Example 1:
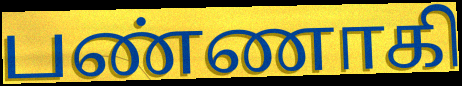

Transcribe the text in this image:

பண்ணாகி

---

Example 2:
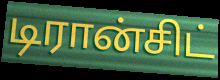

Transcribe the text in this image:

டிரான்சிட்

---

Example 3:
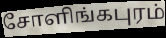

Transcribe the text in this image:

சோளிங்கபுரம்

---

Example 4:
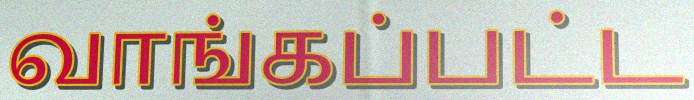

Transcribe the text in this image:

வாங்கப்பட்ட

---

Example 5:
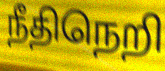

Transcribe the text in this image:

நீதிநெறி